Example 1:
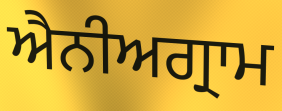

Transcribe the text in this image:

ਐਨੀਅਗ੍ਰਾਮ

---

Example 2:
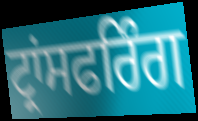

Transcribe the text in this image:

ਟ੍ਰਾਂਸਫਰਿੰਗ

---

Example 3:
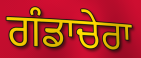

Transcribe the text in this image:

ਗੰਡਾਚੇਰਾ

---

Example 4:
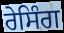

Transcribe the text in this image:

ਰੇਸਿੰਗ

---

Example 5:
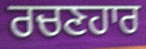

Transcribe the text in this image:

ਰਚਣਹਾਰ